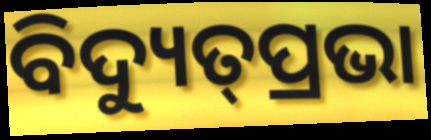
ବିଦ୍ୟୁତ୍‌ପ୍ରଭା